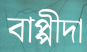
বাপ্পীদা